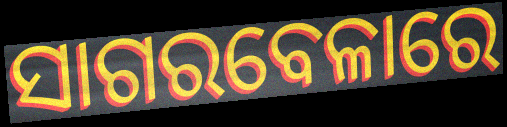
ସାଗରବେଳାରେ